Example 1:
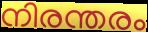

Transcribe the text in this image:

നിരന്തരം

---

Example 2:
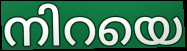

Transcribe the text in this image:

നിറയെ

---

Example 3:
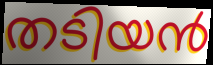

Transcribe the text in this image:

തടിയൻ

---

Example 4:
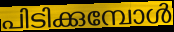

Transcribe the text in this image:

പിടിക്കുമ്പോൾ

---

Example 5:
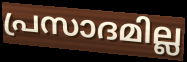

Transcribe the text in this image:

പ്രസാദമില്ല